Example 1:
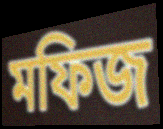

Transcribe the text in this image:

মফিজ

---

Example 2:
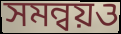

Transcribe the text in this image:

সমন্বয়ও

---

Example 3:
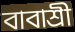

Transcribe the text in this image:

বাবাশ্রী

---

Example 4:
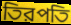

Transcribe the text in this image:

তিরপতি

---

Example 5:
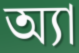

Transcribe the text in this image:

অ্যা